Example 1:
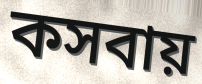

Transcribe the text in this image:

কসবায়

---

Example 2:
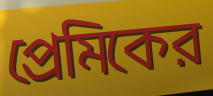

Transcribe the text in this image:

প্রেমিকের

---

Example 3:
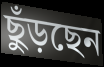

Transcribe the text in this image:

ছুঁড়ছেন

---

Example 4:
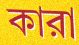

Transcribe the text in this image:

কারা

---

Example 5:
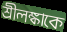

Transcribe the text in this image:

শ্রীলঙ্কাকে